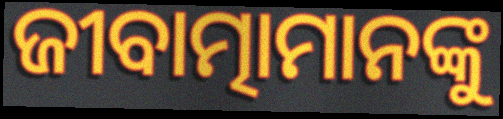
ଜୀବାତ୍ମାମାନଙ୍କୁ